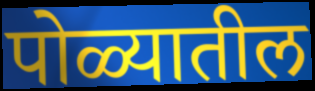
पोळ्यातील